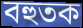
বহুতক